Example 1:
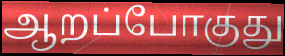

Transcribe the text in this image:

ஆறப்போகுது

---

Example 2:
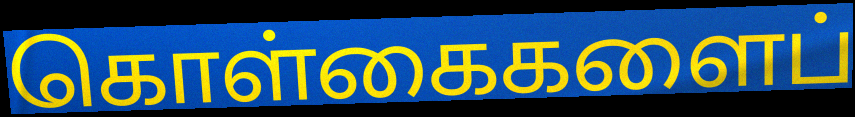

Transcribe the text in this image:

கொள்கைகளைப்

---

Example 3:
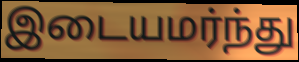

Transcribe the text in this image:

இடையமர்ந்து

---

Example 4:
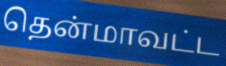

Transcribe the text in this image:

தென்மாவட்ட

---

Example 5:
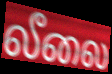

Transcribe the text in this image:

லீலை